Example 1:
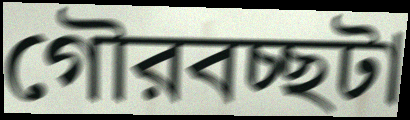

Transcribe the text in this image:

গৌরবচ্ছটা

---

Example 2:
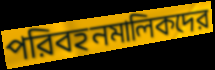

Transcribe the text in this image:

পরিবহনমালিকদের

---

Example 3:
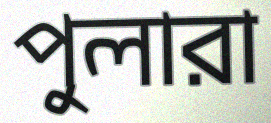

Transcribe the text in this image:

পুলারা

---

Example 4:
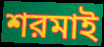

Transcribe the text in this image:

শরমাই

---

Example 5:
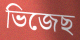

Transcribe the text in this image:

ভিজেছ